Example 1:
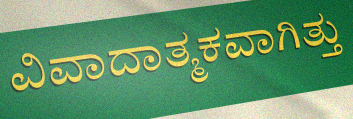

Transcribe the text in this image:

ವಿವಾದಾತ್ಮಕವಾಗಿತ್ತು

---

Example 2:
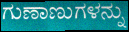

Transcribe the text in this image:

ಗುಣಾಣುಗಳನ್ನು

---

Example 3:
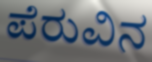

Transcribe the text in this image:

ಪೆರುವಿನ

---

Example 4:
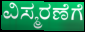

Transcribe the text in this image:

ವಿಸ್ಮರಣೆಗೆ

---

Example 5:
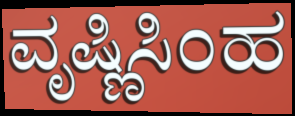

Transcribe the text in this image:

ವೃಷ್ಣಿಸಿಂಹ